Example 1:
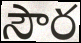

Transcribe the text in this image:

సౌర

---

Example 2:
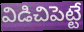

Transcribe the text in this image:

విడిచిపెట్టే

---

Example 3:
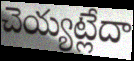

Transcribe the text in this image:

చెయ్యట్లేదా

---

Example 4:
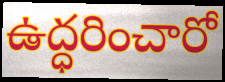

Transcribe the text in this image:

ఉద్ధరించారో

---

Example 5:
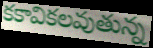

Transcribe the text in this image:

కకావికలవుతున్న